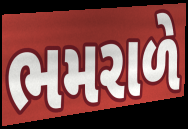
ભમરાળે